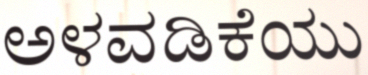
ಅಳವಡಿಕೆಯು